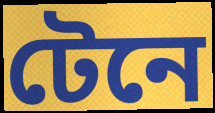
টেনে